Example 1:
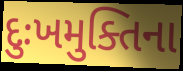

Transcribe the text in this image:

દુઃખમુક્તિના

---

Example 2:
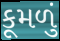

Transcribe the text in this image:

કૂમળું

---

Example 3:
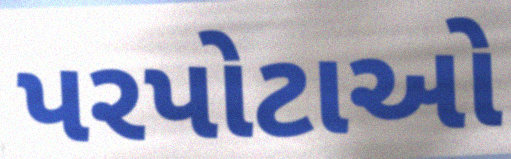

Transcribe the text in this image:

પરપોટાઓ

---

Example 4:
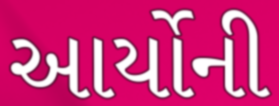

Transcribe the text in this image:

આર્યોની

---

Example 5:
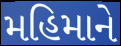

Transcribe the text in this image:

મહિમાને